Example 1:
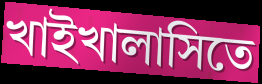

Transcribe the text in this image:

খাইখালাসিতে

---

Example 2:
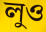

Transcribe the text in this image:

লুও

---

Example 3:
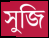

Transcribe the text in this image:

সুজি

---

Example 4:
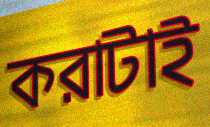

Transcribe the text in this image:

করাটাই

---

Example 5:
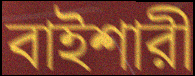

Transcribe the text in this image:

বাইশারী